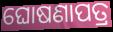
ଘୋଷଣାପତ୍ର